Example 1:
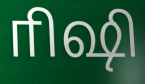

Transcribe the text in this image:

ரிஷி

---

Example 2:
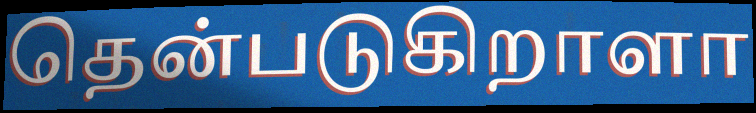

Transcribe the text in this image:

தென்படுகிறாளா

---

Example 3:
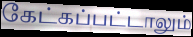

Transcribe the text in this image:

கேட்கப்பட்டாலும்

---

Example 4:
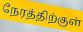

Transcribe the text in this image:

நேரத்திற்குள்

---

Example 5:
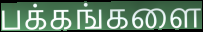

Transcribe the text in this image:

பக்கங்களை